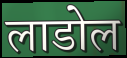
लाडोल